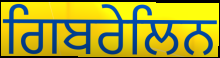
ਗਿਬਰੇਲਿਨ